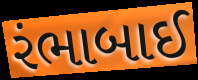
રંભાબાઈ